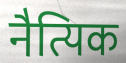
नैत्यिक